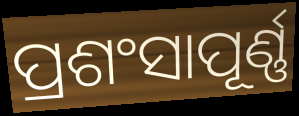
ପ୍ରଶଂସାପୂର୍ଣ୍ଣ